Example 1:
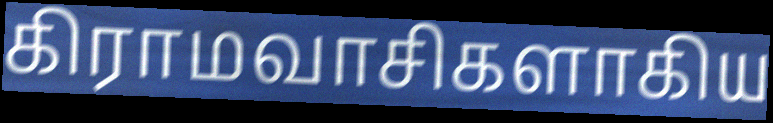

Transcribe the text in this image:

கிராமவாசிகளாகிய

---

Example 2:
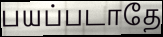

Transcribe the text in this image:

பயப்படாதே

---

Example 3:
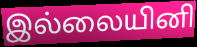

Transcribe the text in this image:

இல்லையினி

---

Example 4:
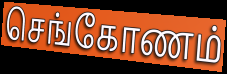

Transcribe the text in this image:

செங்கோணம்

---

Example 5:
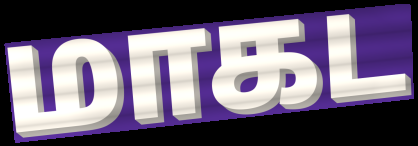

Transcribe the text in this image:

மாகட